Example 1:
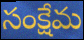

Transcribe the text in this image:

సంక్షేమ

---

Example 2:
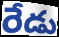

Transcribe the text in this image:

రేడు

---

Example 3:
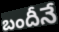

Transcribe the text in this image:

బందీనే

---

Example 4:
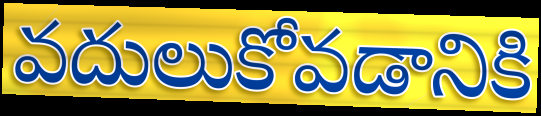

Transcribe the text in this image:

వదులుకోవడానికి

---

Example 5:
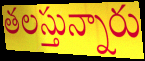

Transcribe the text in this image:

తలస్తున్నారు